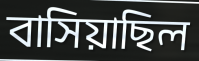
বাসিয়াছিল